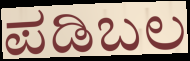
ಪಡಿಬಲ